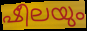
ഷീലയും